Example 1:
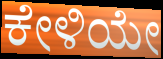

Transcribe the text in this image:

ಕೇಳಿಯೇ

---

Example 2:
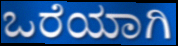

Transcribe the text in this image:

ಒರೆಯಾಗಿ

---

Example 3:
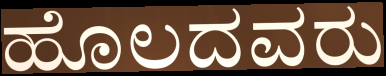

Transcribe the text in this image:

ಹೊಲದವರು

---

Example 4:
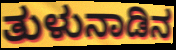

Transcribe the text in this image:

ತುಳುನಾಡಿನ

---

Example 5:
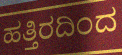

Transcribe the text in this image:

ಹತ್ತಿರದಿಂದ